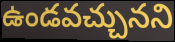
ఉండవచ్చునని